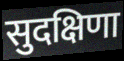
सुदक्षिणा